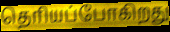
தெரியப்போகிறது